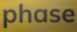
phase